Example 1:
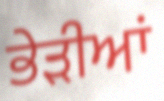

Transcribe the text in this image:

ਭੇੜੀਆਂ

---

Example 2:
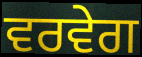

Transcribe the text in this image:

ਵਰਵੇਗ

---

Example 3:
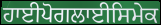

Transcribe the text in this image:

ਹਾਈਪੋਗਲਾਈਸਿਮੇਕ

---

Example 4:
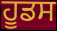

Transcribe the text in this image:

ਹੂਡਸ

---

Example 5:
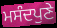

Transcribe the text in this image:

ਮਸੰਦਪੁਣੇ